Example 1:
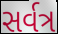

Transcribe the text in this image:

સર્વત્ર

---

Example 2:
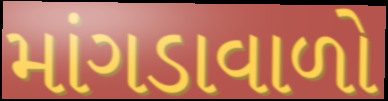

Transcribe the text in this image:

માંગડાવાળો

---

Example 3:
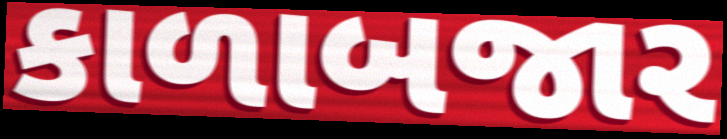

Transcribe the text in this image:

કાળાબજાર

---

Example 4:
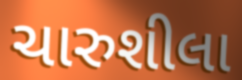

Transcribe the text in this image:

ચારુશીલા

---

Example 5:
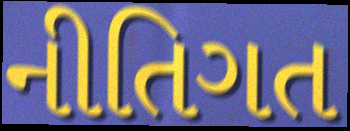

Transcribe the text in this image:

નીતિગત